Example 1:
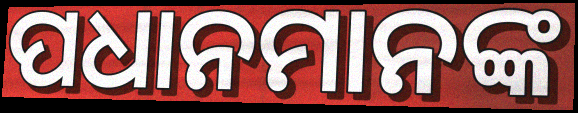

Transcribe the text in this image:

ପଧାନମାନଙ୍କ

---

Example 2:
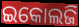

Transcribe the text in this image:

ଇକୋଲଜି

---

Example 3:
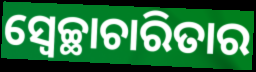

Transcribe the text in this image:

ସ୍ୱେଚ୍ଛାଚାରିତାର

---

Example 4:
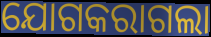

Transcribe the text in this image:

ଯୋଗକରାଗଲା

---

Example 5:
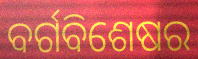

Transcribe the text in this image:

ବର୍ଗବିଶେଷର